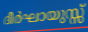
ദീർഘായുസ്സ്